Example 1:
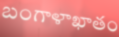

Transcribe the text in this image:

బంగాళాఖాతం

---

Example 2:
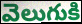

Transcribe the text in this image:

వెలుగుకి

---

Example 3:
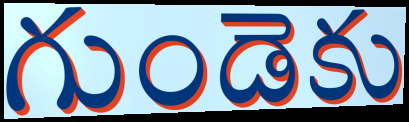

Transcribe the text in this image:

గుండెకు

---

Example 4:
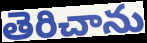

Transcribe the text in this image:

తెరిచాను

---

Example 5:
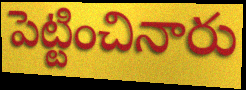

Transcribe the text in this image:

పెట్టించినారు